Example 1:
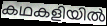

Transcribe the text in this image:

കഥകളിയിൽ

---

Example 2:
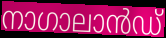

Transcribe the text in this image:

നാഗാലാൻഡ്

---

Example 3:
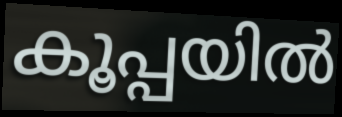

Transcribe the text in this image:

കൂപ്പയിൽ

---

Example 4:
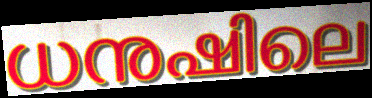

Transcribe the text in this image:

ധനുഷിലെ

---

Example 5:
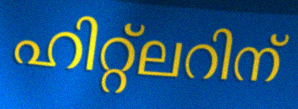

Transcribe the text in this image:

ഹിറ്റ്ലറിന്